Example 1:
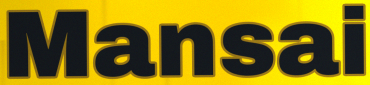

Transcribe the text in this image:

Mansai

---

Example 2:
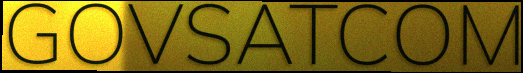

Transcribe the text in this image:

GOVSATCOM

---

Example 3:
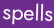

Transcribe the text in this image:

spells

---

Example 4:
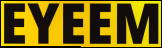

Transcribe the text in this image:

EYEEM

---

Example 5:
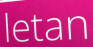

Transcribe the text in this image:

letan